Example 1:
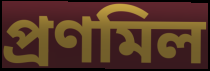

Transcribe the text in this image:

প্রণমিল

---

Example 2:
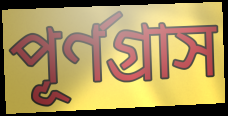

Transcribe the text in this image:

পূর্ণগ্রাস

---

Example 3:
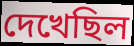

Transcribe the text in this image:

দেখেছিল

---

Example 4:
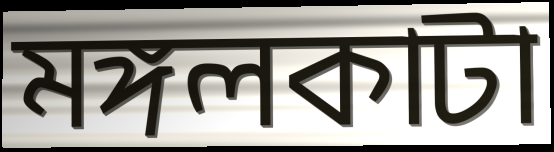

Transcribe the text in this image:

মঙ্গলকাটা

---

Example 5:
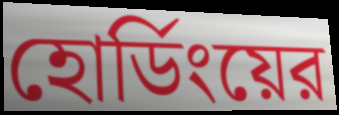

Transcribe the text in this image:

হোর্ডিংয়ের